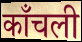
काँचली